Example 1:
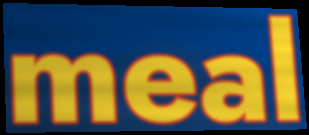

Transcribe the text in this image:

meal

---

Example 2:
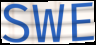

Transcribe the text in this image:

SWE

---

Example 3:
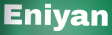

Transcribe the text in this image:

Eniyan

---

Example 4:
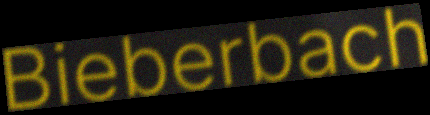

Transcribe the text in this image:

Bieberbach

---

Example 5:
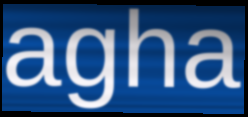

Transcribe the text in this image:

agha